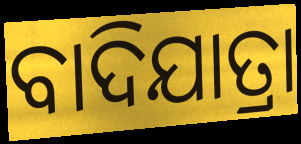
ବାଦିଯାତ୍ରା